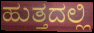
ಹುತ್ತದಲ್ಲಿ